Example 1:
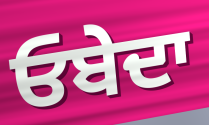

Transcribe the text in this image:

ਓਬੇਦਾ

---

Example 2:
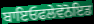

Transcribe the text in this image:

ਬਾਇਓਫਲੇਵੋਨੋਇਡ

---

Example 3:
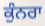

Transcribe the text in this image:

ਕੁੰਨਰਾ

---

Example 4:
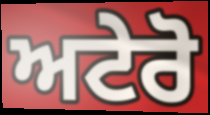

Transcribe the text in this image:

ਅਟੇਰੋ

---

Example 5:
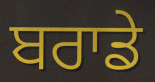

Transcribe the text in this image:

ਬਰਾਡੇ